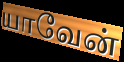
யாவேன்